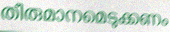
തീരുമാനമെടുക്കണം